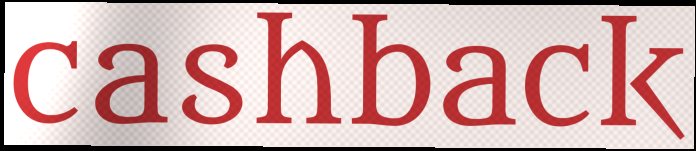
cashback